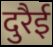
दुरैई